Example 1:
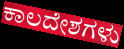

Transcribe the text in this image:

ಕಾಲದೇಶಗಳು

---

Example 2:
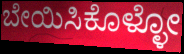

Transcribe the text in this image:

ಬೇಯಿಸಿಕೊಳ್ಳೋ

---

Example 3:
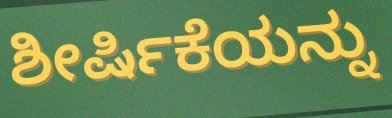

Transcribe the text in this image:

ಶೀರ್ಷಿಕೆಯನ್ನು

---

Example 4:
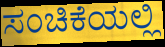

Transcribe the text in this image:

ಸಂಚಿಕೆಯಲ್ಲಿ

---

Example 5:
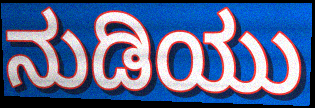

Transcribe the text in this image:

ನುಡಿಯು